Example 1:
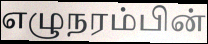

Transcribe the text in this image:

எழுநரம்பின்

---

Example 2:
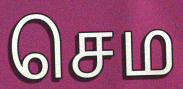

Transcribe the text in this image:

செம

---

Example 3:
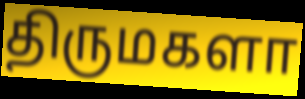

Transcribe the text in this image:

திருமகளா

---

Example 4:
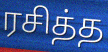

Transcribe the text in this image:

ரசித்த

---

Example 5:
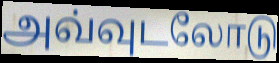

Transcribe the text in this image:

அவ்வுடலோடு